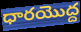
ధారయొద్ద